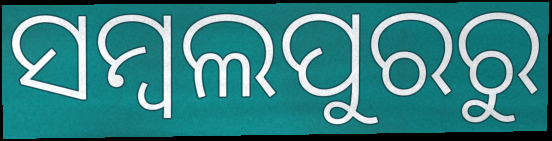
ସମ୍ବଲପୁରରୁ